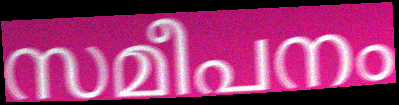
സമീപനം